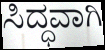
ಸಿದ್ಧವಾಗಿ